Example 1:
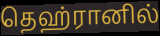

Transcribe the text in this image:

தெஹ்ரானில்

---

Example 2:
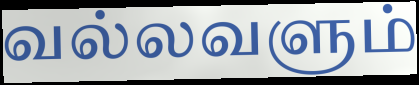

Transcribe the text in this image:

வல்லவளும்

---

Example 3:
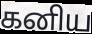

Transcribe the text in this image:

கனிய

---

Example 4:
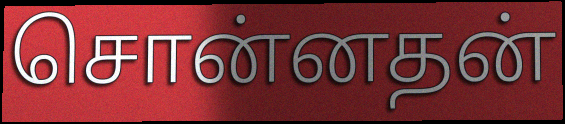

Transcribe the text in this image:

சொன்னதன்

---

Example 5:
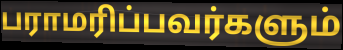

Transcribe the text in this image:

பராமரிப்பவர்களும்